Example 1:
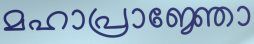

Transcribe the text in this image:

മഹാപ്രാജ്ഞോ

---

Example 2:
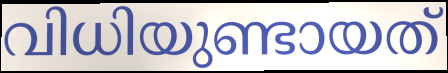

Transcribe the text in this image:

വിധിയുണ്ടായത്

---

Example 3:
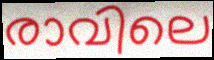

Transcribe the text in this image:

രാവിലെ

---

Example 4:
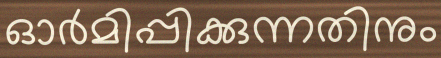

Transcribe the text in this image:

ഓർമിപ്പിക്കുന്നതിനും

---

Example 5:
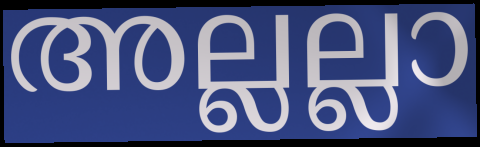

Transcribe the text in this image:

അല്ലല്ലാ